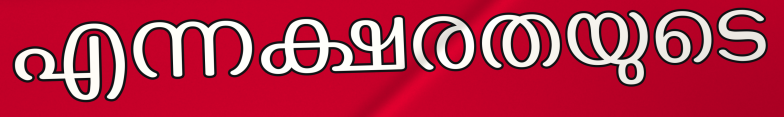
എന്നക്ഷരതയുടെ